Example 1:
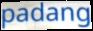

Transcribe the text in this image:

padang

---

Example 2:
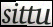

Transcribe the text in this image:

sittu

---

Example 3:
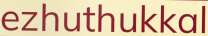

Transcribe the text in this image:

ezhuthukkal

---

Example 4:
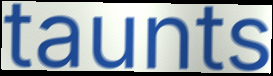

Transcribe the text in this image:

taunts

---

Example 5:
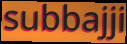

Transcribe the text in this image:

subbajji